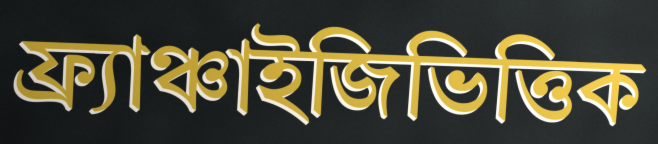
ফ্র্যাঞ্চাইজিভিত্তিক